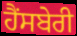
ਹੈਂਸਬੇਰੀ